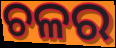
ଚଳର